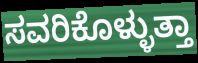
ಸವರಿಕೊಳ್ಳುತ್ತಾ